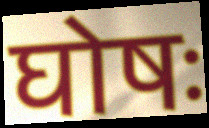
घोषः